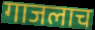
गाजलाच